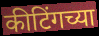
कीटिंगच्या